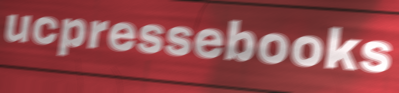
ucpressebooks